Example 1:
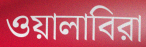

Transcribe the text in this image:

ওয়ালাবিরা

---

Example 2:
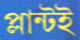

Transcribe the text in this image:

প্লান্টই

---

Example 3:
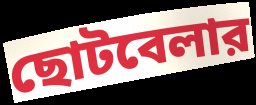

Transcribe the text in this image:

ছোটবেলার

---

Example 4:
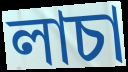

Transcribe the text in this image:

লাচা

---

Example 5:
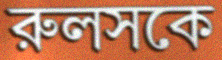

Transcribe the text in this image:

রুলসকে